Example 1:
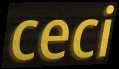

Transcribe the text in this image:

ceci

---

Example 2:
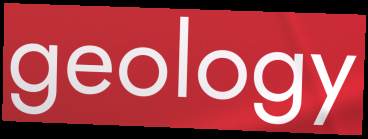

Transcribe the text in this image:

geology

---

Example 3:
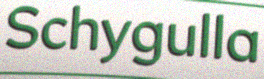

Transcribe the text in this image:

Schygulla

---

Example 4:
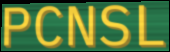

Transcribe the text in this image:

PCNSL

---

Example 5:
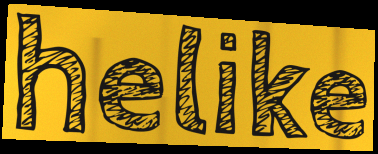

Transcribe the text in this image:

helike